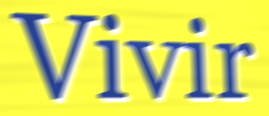
Vivir